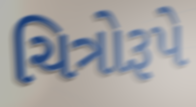
ચિત્રોરૂપે